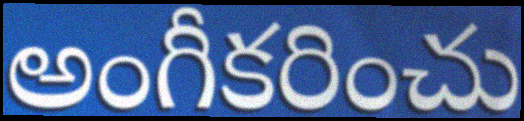
అంగీకరించు